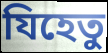
যিহেতু